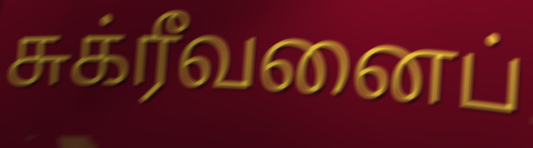
சுக்ரீவனைப்